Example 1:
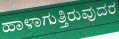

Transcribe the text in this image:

ಹಾಳಾಗುತ್ತಿರುವುದರ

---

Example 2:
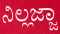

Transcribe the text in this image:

ನಿಲ್ಲಜ್ಜಾ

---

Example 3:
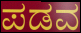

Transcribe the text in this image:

ಪಡವ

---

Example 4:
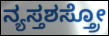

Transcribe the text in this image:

ನ್ಯಸ್ತಶಸ್ತ್ರೋ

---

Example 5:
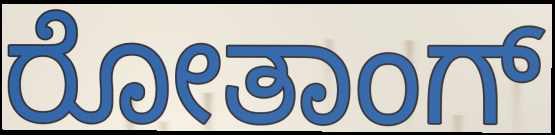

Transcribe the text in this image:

ರೋತಾಂಗ್